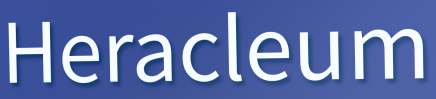
Heracleum